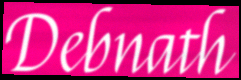
Debnath